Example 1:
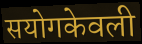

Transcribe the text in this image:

सयोगकेवली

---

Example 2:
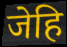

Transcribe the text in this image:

जेहि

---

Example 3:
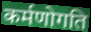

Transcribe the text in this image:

कर्मणोगति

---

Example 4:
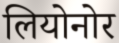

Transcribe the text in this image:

लियोनोर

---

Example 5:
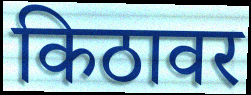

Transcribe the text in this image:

किठावर